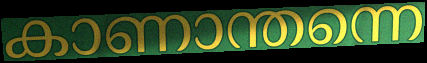
കാണാന്തന്നെ